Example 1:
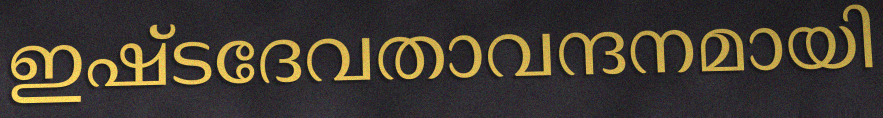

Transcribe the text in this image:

ഇഷ്ടദേവതാവന്ദനമായി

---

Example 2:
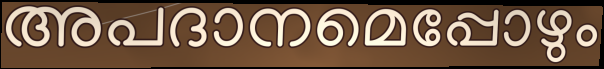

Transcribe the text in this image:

അപദാനമെപ്പോഴും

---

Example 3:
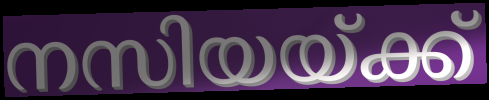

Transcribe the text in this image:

നസിയയ്ക്ക്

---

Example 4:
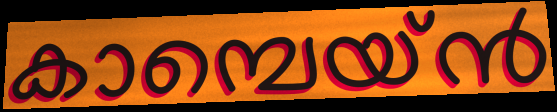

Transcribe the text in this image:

കാമ്പെയ്ൻ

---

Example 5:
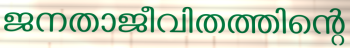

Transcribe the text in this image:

ജനതാജീവിതത്തിന്റെ